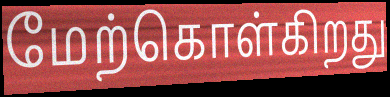
மேற்கொள்கிறது